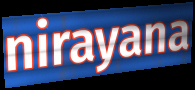
nirayana